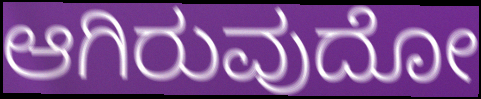
ಆಗಿರುವುದೋ